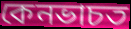
কেনভাচত